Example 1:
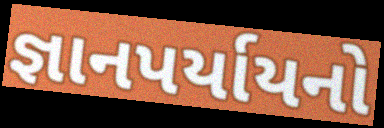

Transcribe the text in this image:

જ્ઞાનપર્યાયનો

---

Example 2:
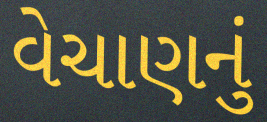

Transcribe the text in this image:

વેચાણનું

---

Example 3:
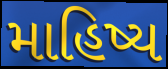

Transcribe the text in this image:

માહિષ્ય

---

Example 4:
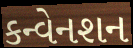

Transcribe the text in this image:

કન્વેનશન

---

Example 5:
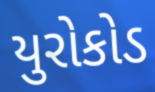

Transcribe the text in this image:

યુરોકોડ